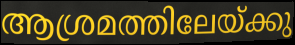
ആശ്രമത്തിലേയ്ക്കു